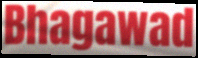
Bhagawad